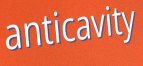
anticavity